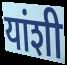
यांशी